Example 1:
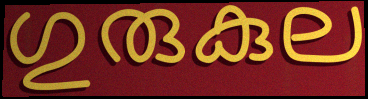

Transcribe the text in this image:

ഗുരുകുല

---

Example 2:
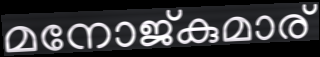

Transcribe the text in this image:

മനോജ്കുമാര്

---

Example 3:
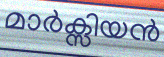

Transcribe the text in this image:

മാർക്സിയൻ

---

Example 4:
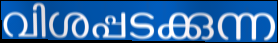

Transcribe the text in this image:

വിശപ്പടക്കുന്ന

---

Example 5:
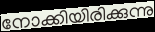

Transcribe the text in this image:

നോക്കിയിരിക്കുന്നു